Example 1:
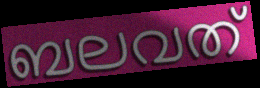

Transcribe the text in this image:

ബലവത്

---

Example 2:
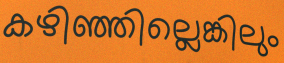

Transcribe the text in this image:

കഴിഞ്ഞില്ലെങ്കിലും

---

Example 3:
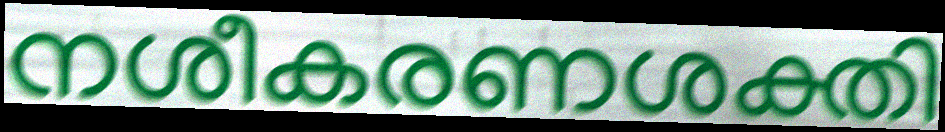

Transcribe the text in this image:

നശീകരണശക്തി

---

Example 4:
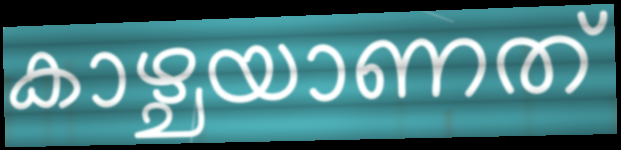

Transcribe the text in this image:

കാഴ്ചയാണത്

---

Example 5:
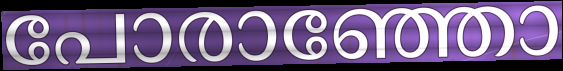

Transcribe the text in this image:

പോരാഞ്ഞോ